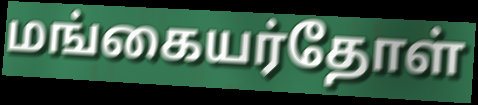
மங்கையர்தோள்